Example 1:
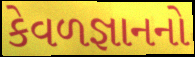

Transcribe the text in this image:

કેવળજ્ઞાનનો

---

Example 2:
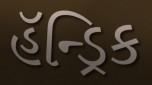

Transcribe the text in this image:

હૅન્ડ્રિક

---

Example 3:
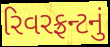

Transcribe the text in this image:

રિવરફ્રન્ટનું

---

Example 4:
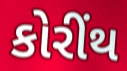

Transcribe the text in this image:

કોરીંથ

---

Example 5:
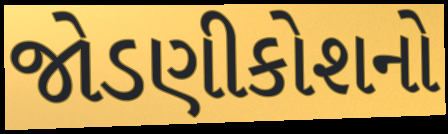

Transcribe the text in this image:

જોડણીકોશનો